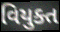
વિયુક્ત